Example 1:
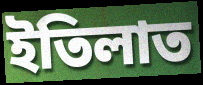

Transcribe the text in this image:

ইতিলাত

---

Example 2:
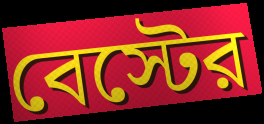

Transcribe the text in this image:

বেস্টের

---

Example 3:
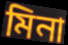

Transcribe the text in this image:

মিনা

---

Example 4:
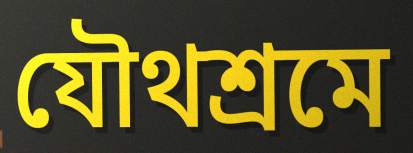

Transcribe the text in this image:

যৌথশ্রমে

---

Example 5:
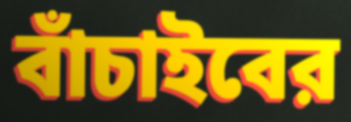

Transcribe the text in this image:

বাঁচাইবের